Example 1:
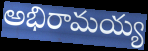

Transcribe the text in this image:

అభిరామయ్య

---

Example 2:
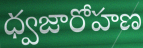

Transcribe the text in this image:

ధ్వజారోహణ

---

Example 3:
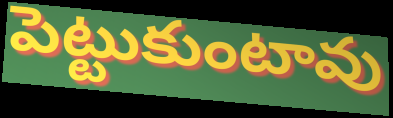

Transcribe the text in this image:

పెట్టుకుంటావు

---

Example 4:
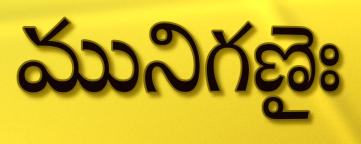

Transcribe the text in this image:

మునిగణైః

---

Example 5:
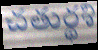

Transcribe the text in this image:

చతుర్థశి